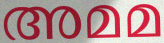
അമമ